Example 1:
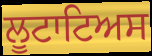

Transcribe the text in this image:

ਲੂਟਾਟਿਅਸ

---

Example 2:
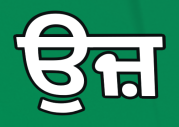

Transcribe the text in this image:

ਉਜ਼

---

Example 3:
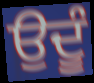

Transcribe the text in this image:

ਉਦੂੰ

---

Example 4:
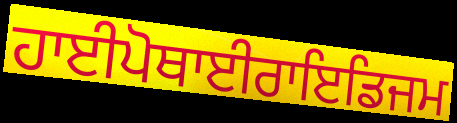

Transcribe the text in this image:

ਹਾਈਪੋਥਾਈਰਾਇਡਿਜਮ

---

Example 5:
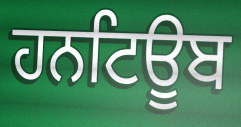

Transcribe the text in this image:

ਹਨਟਿਊਬ